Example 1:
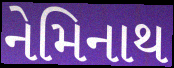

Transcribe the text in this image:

નેમિનાથ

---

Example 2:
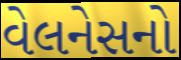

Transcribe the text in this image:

વેલનેસનો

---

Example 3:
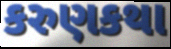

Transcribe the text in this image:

કરુણકથા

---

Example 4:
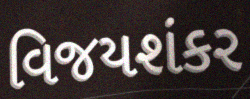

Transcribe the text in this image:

વિજયશંકર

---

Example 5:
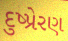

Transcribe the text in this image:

દુષ્પ્રેરણ